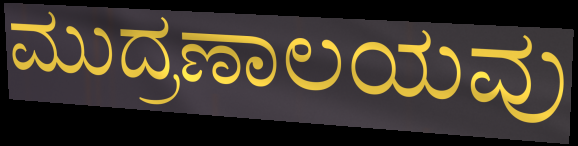
ಮುದ್ರಣಾಲಯವು